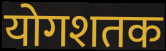
योगशतक